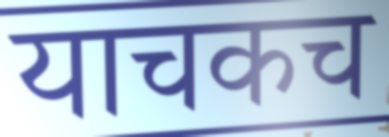
याचकच